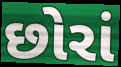
છોરાં